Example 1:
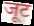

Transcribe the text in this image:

जूट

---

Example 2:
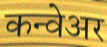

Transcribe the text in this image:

कन्वेअर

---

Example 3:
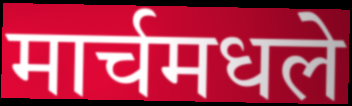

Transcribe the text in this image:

मार्चमधले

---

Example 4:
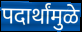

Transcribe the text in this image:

पदार्थांमुळे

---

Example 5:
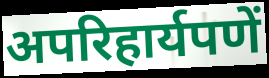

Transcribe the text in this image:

अपरिहार्यपणें